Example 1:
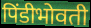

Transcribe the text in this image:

पिंडीभोवती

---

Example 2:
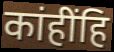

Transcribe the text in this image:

कांहींहि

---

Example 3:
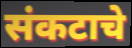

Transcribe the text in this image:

संकटाचे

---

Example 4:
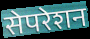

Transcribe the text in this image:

सेपरेशन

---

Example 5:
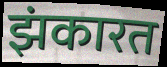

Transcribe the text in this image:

झंकारत